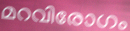
മറവിരോഗം